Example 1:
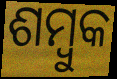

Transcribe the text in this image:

ଶମ୍ବୁକ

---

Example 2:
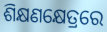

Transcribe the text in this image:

ଶିକ୍ଷଣକ୍ଷେତ୍ରରେ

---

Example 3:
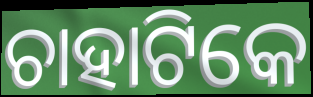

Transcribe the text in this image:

ଚାହାଟିକେ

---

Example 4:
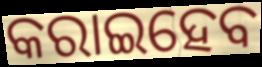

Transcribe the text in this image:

କରାଇହେବ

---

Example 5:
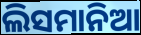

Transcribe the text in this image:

ଲିସମାନିଆ